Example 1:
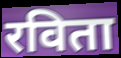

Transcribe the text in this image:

रविता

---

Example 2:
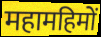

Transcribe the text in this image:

महामहिमों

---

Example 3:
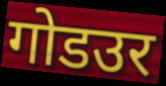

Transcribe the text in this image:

गोडउर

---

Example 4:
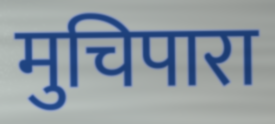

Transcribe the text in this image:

मुचिपारा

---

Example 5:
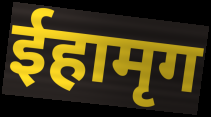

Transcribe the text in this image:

ईहामृग